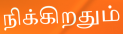
நிக்கிறதும்